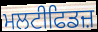
ਮਲਟੀਫਿਡਜ਼